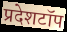
प्रदेशटॉप